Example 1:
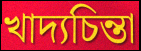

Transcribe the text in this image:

খাদ্যচিন্তা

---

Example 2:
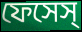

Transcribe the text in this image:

ফেসেস্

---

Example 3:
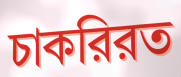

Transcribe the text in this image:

চাকরিরত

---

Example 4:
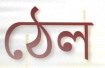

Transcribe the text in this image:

ঠেল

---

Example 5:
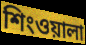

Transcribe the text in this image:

শিংওয়ালা